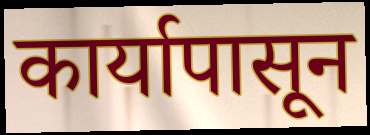
कार्यापासून